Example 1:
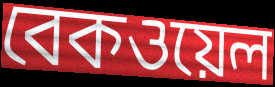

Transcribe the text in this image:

বেকওয়েল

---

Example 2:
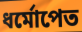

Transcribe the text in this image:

ধর্মোপেত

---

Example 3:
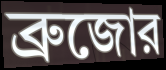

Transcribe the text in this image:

ব্রুজোর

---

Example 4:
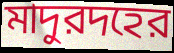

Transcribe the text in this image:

মাদুরদহের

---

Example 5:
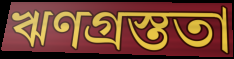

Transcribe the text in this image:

ঋণগ্রস্ততা